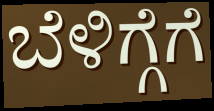
ಬೆಳಿಗ್ಗೆಗೆ